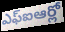
ఎఫ్ఐఆర్లో